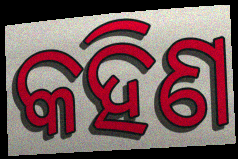
କହିଣ